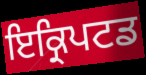
ਇਕ੍ਰਿਪਟਡ